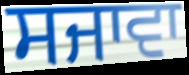
ਸਜਾਵਾ